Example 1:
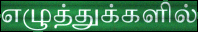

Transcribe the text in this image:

எழுத்துக்களில்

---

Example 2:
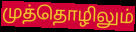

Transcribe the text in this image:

முத்தொழிலும்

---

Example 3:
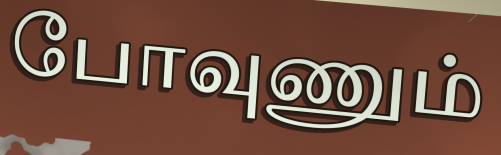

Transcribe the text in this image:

போவுணும்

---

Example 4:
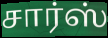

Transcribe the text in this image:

சார்ஸ்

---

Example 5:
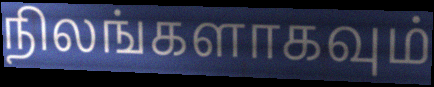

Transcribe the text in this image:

நிலங்களாகவும்